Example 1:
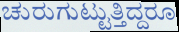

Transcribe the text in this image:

ಚುರುಗುಟ್ಟುತ್ತಿದ್ದರೂ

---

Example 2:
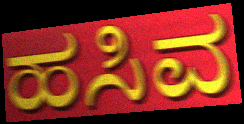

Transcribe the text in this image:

ಹಸಿವ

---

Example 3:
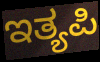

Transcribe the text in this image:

ಇತ್ಯಪಿ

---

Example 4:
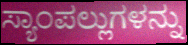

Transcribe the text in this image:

ಸ್ಯಾಂಪಲ್ಲುಗಳನ್ನು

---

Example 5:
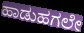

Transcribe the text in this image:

ಹಾಡುಹಗಲೇ